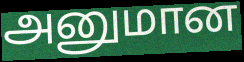
அனுமான